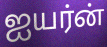
ஐயர்ன்